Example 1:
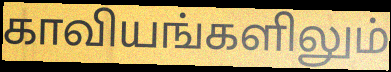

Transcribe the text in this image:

காவியங்களிலும்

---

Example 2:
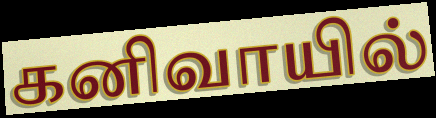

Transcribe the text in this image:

கனிவாயில்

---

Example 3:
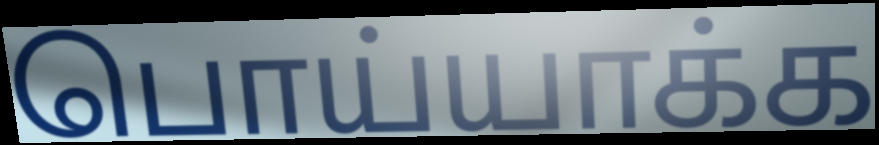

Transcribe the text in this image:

பொய்யாக்க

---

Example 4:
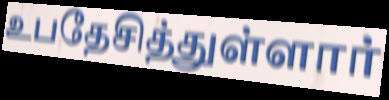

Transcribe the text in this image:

உபதேசித்துள்ளார்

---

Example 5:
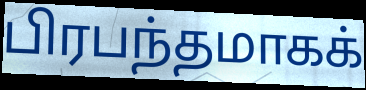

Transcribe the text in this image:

பிரபந்தமாகக்